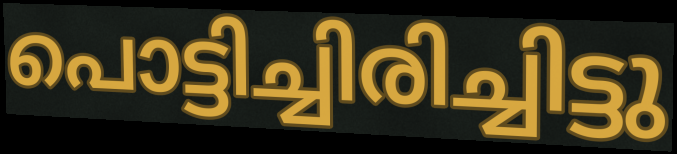
പൊട്ടിച്ചിരിച്ചിട്ടു